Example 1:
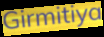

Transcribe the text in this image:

Girmitiya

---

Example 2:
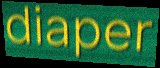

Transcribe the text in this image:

diaper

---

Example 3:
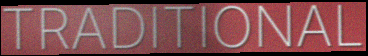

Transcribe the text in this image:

TRADITIONAL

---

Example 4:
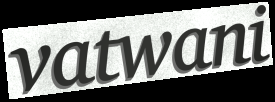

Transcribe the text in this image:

vatwani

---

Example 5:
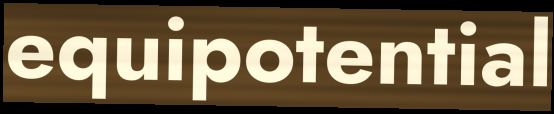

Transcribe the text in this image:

equipotential